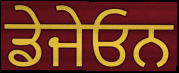
ਡੇਜੇਓਨ